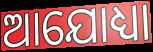
ଆଯୋଧ୍ୟା